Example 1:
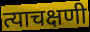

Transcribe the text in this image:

त्याचक्षणी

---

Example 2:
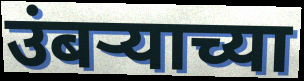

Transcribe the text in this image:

उंबऱ्याच्या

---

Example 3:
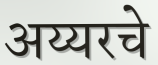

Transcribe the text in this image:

अय्यरचे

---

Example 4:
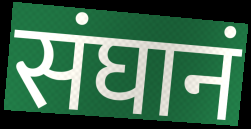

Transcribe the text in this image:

संघानं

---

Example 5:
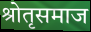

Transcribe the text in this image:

श्रोतृसमाज